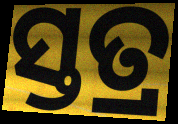
ସ୍ତତ୍ର